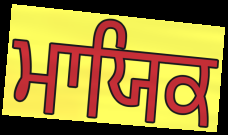
ਮਾਯਿਕ